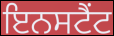
ਇਨਸਟੈਂਟ